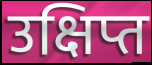
उक्षिप्त